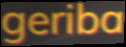
geriba